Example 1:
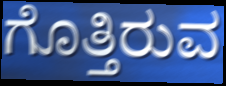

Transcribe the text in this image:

ಗೊತ್ತಿರುವ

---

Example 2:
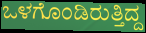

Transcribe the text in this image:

ಒಳಗೊಂಡಿರುತ್ತಿದ್ದ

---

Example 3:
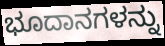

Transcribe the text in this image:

ಭೂದಾನಗಳನ್ನು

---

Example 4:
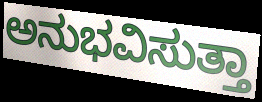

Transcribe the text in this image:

ಅನುಭವಿಸುತ್ತಾ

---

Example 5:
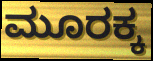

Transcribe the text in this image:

ಮೂರಕ್ಕ